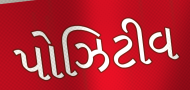
પોઝિટીવ